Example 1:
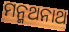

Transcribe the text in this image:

ମନ୍ମଥନାଥ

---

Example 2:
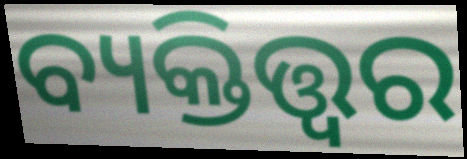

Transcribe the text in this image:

ବ୍ୟକ୍ତିତ୍ତ୍ଵର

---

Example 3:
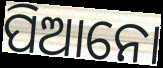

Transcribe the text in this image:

ପିଆନୋ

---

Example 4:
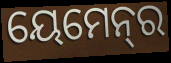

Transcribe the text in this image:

ୟେମେନ୍‌ର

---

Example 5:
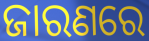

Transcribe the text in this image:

ଜାରଣରେ